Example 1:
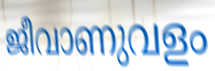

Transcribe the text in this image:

ജീവാണുവളം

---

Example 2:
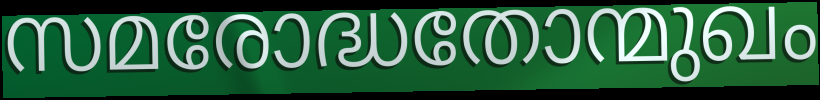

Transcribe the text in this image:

സമരോദ്ധതോന്മുഖം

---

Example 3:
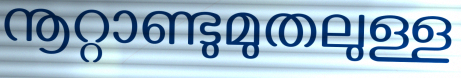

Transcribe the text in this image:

നൂറ്റാണ്ടുമുതലുള്ള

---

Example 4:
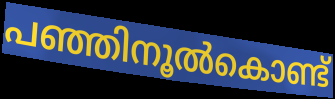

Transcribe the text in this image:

പഞ്ഞിനൂൽകൊണ്ട്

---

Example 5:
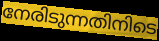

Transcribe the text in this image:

നേരിടുന്നതിനിടെ